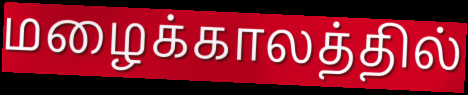
மழைக்காலத்தில்